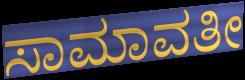
ಸಾಮಾವತೀ